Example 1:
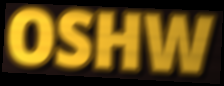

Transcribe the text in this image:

OSHW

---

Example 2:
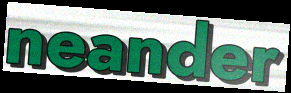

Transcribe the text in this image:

neander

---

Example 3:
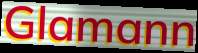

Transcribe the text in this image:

Glamann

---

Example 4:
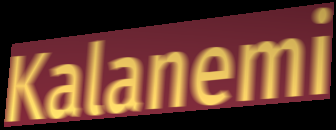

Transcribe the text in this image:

Kalanemi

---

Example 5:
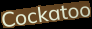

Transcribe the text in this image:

Cockatoo